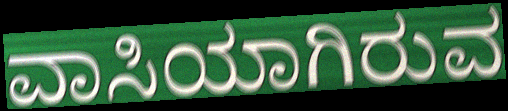
ವಾಸಿಯಾಗಿರುವ